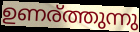
ഉണര്ത്തുന്നു